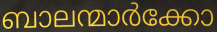
ബാലന്മാർക്കോ